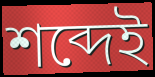
শব্দেই